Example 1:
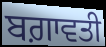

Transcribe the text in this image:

ਬਗ਼ਾਵਤੀ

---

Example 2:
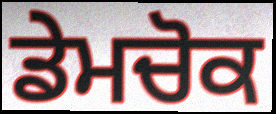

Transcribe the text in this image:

ਡੇਮਚੋਕ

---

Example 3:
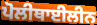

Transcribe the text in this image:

ਪੋਲੀਥਾਈਲੀਨ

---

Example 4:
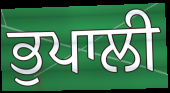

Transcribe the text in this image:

ਭੁਪਾਲੀ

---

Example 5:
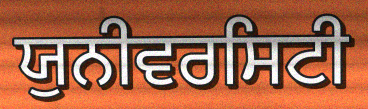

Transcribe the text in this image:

ਯੁਨੀਵਰਸਿਟੀ